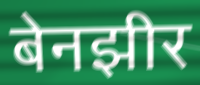
बेनझीर